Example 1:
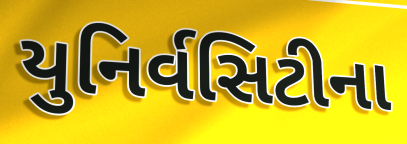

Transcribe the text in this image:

યુનિર્વસિટીના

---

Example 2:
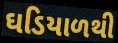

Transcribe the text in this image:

ઘડિયાળથી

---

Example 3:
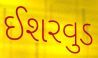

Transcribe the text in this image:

ઈશરવુડ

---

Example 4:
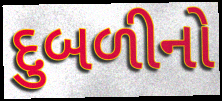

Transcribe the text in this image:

દુબળીનો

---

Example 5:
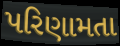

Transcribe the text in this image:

પરિણામતા